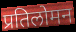
प्रतिलोमन